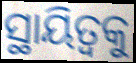
ସ୍ଥାୟିତ୍ୱକୁ